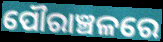
ପୌରାଞ୍ଚଳରେ